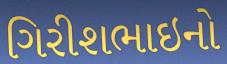
ગિરીશભાઇનો